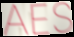
AES